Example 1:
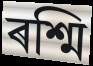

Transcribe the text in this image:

ৰশ্মি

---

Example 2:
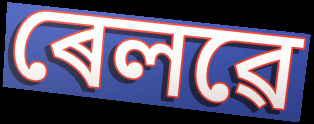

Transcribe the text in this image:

ৰেলৱে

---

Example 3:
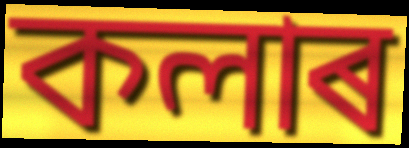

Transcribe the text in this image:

কলাৰ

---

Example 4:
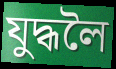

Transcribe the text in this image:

যুদ্ধলৈ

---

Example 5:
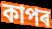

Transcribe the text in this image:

কাপৰ